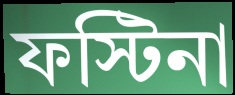
ফস্টিনা